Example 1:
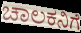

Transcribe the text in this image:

ಚಾಲಕನಿಗೆ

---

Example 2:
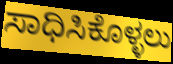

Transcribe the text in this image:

ಸಾಧಿಸಿಕೊಳ್ಳಲು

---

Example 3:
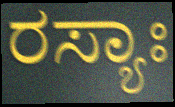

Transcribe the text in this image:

ರಸ್ಯಾಃ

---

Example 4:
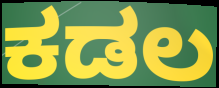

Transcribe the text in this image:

ಕಡಲ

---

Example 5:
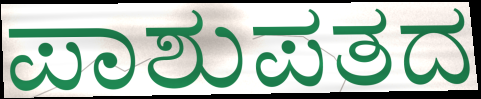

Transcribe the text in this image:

ಪಾಶುಪತದ